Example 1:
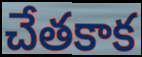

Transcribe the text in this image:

చేతకాక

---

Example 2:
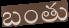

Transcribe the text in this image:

బంతు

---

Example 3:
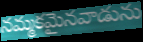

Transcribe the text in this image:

నమ్మకమైనవాడును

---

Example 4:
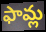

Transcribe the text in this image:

ఫామ్ల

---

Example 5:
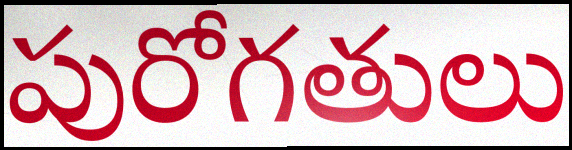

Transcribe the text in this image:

పురోగతులు